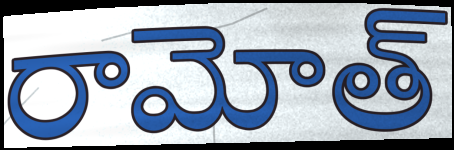
రామోత్